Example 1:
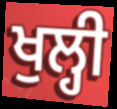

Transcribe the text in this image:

ਖੁਲ੍ਹੀ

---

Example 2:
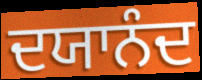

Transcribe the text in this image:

ਦਯਾਨੰਦ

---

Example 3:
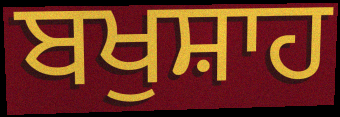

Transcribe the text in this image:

ਬਖੁਸ਼ਾਹ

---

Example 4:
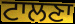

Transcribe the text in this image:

ਟਾਲਣਾ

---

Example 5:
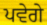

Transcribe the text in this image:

ਪਵੇਗੇ